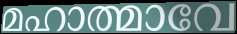
മഹാത്മാവേ